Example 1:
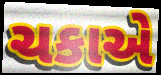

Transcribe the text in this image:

ચકાએ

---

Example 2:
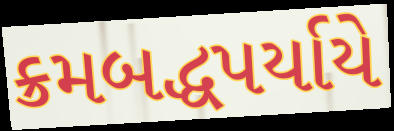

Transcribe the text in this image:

ક્રમબદ્ધપર્યાયે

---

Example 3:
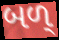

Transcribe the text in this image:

બળ્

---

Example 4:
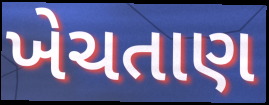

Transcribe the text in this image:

ખેચતાણ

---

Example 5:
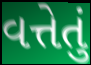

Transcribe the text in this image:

વત્તેતું